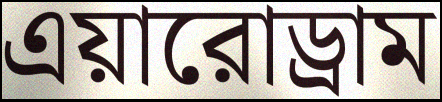
এয়ারোড্রাম